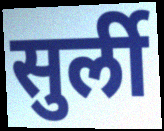
सुर्ली